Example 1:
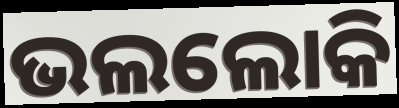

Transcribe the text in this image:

ଭଲଲୋକି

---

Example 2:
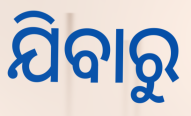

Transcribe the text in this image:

ଯିବାରୁ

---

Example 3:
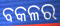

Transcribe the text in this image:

ବକଳର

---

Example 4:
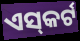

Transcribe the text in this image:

ଏସ୍‌କର୍ଟ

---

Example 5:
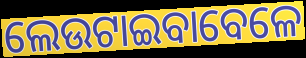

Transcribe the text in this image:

ଲେଉଟାଇବାବେଳେ